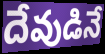
దేవుడినే